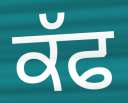
ਕੱਫ